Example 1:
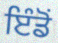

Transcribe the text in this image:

ਇੰਡੋਂ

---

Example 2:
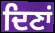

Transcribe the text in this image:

ਦਿਣਾਂ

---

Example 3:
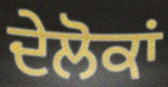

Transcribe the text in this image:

ਦੇਲੋਕਾਂ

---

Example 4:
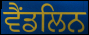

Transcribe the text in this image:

ਵੈਂਡਲਿਨ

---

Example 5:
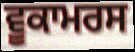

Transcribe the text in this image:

ਵੂਕਾਮਰਸ